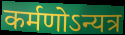
कर्मणोऽन्यत्र